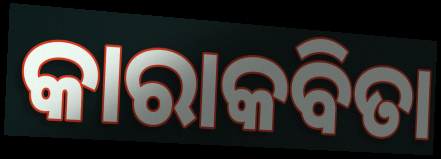
କାରାକବିତା